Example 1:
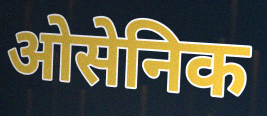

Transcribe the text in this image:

ओसेनिक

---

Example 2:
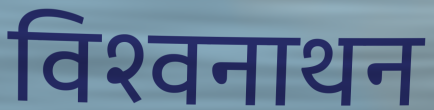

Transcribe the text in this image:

विश्वनाथन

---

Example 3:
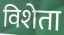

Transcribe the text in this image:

विशेता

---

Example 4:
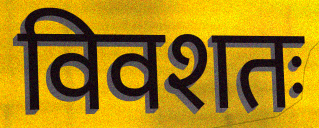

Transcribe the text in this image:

विवशतः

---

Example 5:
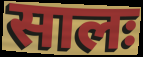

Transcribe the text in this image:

सालः